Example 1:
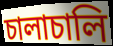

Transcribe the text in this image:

চালাচালি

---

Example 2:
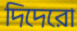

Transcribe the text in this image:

দিদেরো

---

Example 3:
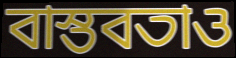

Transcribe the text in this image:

বাস্তবতাও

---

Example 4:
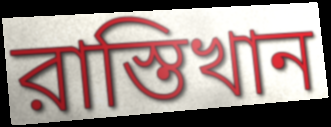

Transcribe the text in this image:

রাস্তিখান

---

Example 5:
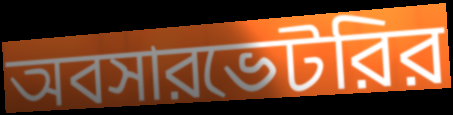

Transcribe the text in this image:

অবসারভেটরির